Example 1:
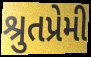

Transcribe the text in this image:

શ્રુતપ્રેમી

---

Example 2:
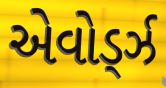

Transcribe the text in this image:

એવોર્ડ્ઝ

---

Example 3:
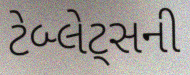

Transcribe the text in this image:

ટેબ્લેટ્સની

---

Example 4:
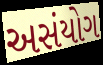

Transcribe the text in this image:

અસંયોગ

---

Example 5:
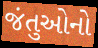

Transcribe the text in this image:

જંતુઓનો